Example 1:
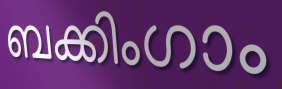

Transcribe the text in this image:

ബക്കിംഗാം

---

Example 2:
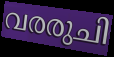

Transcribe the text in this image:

വരരുചി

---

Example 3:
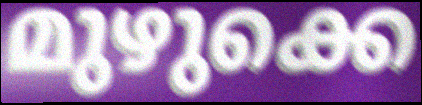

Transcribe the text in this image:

മുഴുക്കെ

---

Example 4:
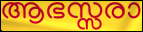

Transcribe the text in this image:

ആഭസ്സരാ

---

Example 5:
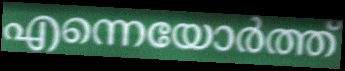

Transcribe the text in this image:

എന്നെയോർത്ത്